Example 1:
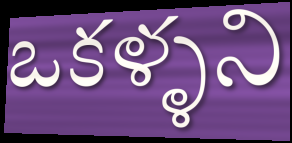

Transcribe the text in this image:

ఒకళ్ళని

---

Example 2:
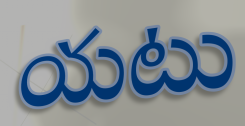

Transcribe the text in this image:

యటు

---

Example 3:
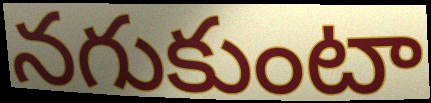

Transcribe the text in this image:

నగుకుంటా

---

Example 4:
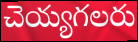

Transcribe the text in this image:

చెయ్యగలరు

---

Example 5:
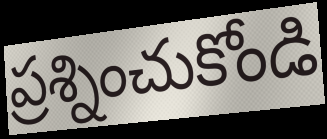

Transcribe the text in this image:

ప్రశ్నించుకోండి